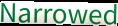
Narrowed